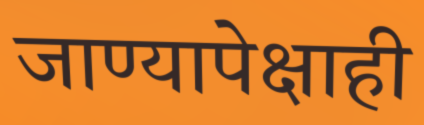
जाण्यापेक्षाही